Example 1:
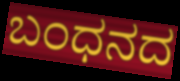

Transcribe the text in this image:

ಬಂಧನದ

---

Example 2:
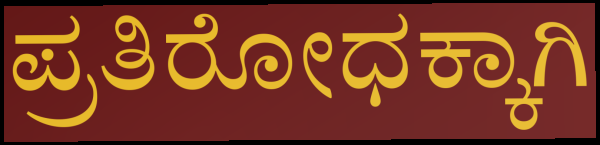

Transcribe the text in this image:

ಪ್ರತಿರೋಧಕ್ಕಾಗಿ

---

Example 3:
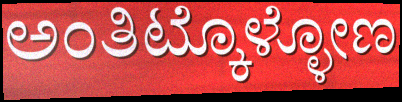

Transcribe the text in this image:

ಅಂತಿಟ್ಕೊಳ್ಳೋಣ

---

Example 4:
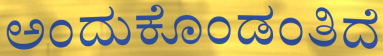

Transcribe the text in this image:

ಅಂದುಕೊಂಡಂತಿದೆ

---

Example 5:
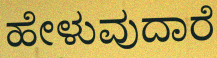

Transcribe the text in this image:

ಹೇಳುವುದಾರೆ